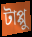
টাপ্পু